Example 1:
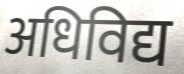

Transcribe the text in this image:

अधिविद्य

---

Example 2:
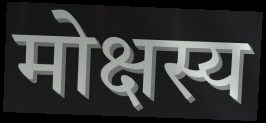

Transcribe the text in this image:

मोक्षस्य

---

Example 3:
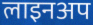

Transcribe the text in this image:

लाइनअप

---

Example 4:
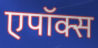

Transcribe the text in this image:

एपॉक्स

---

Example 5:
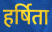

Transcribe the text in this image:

हर्षिता